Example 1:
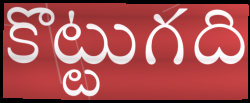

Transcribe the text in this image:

కొట్టుగది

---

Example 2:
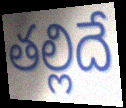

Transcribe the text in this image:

తల్లిదే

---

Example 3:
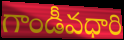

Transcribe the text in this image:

గాండీవధారి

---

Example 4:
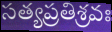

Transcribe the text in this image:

సత్యప్రతిశ్రవః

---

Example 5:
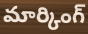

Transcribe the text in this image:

మార్కింగ్